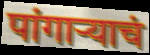
पांगाऱ्याचं